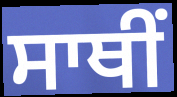
ਸਾਥੀਂ